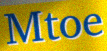
Mtoe